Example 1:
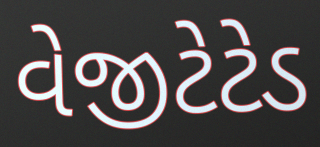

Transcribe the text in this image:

વેજીટેટેડ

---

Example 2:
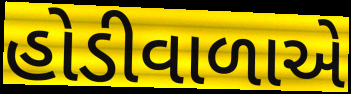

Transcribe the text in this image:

હોડીવાળાએ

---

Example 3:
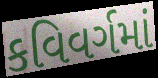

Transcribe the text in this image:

કવિવર્ગમાં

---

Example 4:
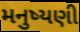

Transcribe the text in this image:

મનુષ્યણી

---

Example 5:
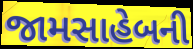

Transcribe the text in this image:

જામસાહેબની